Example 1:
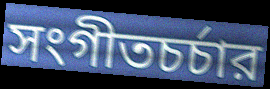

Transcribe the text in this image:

সংগীতচর্চার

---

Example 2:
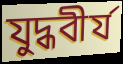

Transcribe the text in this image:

যুদ্ধবীর্য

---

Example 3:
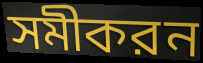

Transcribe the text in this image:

সমীকরন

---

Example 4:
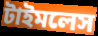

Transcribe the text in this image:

টাইমলেস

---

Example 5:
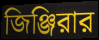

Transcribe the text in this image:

জিঞ্জিরার